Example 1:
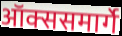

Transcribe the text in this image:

ऑक्ससमार्गे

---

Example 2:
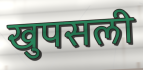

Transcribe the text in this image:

खुपसली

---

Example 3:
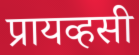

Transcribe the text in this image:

प्रायव्हसी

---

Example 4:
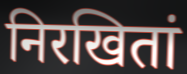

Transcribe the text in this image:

निरखितां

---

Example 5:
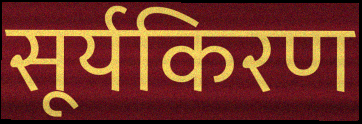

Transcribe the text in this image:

सूर्यकिरण